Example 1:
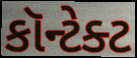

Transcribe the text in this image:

કૉન્ટેક્ટ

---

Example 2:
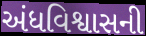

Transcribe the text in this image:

અંધવિશ્વાસની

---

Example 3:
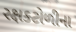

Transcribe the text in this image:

રક્ષકટોળીના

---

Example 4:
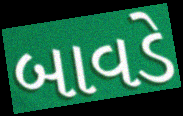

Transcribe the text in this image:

બાવડે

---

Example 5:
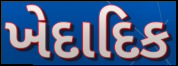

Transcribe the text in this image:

ખેદાદિક